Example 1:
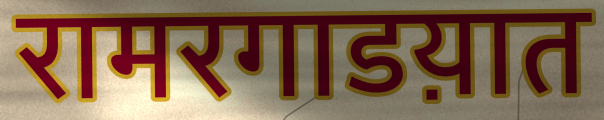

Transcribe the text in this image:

रामरगाडय़ात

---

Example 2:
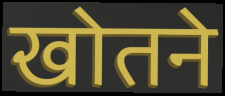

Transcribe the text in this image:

खोतने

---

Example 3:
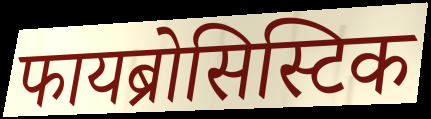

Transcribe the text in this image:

फायब्रोसिस्टिक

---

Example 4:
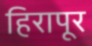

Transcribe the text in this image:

हिरापूर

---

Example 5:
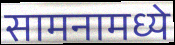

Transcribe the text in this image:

सामनामध्ये